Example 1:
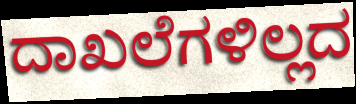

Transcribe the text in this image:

ದಾಖಲೆಗಳಿಲ್ಲದ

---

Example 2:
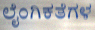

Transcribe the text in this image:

ಲೈಂಗಿಕತೆಗಳ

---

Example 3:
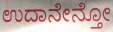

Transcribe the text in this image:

ಉದಾನೇನ್ತೋ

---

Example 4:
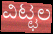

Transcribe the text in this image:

ವಿಟ್ಟಲ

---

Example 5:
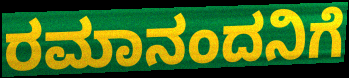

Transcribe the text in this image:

ರಮಾನಂದನಿಗೆ